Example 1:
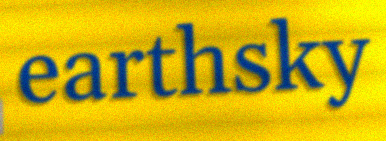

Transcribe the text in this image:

earthsky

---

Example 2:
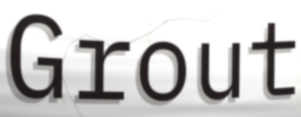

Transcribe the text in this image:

Grout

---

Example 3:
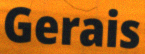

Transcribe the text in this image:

Gerais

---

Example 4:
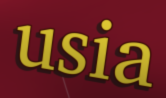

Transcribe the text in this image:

usia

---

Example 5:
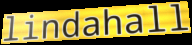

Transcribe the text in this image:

lindahall